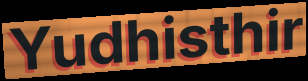
Yudhisthir